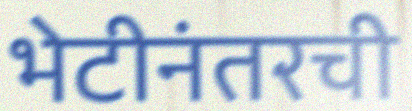
भेटीनंतरची